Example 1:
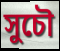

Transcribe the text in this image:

সুচৌ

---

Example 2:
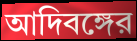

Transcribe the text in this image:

আদিবঙ্গের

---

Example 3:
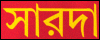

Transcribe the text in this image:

সারদা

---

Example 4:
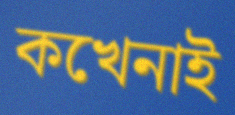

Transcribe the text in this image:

কখেনাই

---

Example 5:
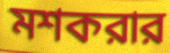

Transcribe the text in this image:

মশকরার